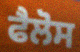
ਫੈਲੋਸ